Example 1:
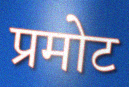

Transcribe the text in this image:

प्रमोट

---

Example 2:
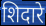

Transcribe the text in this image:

शिदारे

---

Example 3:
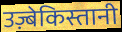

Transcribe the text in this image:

उज़्बेकिस्तानी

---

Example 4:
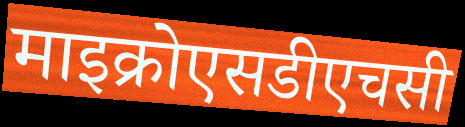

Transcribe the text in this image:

माइक्रोएसडीएचसी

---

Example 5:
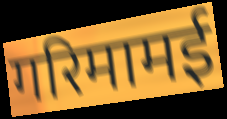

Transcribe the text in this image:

गरिमामई